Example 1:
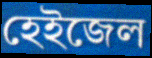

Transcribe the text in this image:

হেইজেল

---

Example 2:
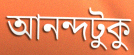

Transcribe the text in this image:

আনন্দটুকু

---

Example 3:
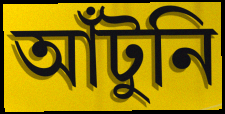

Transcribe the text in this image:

আঁটুনি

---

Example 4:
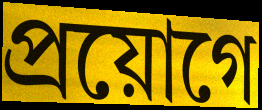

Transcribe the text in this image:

প্রয়োগে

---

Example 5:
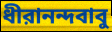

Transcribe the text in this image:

ধীরানন্দবাবু